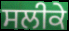
ਸਲੀਕੇ